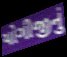
યોગીજીનું